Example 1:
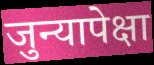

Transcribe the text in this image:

जुन्यापेक्षा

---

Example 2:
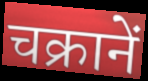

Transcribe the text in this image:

चक्रानें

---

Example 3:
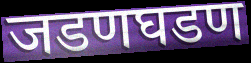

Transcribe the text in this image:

जडणघडण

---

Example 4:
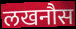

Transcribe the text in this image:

लखनौस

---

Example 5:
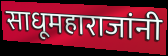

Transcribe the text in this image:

साधूमहाराजांनी